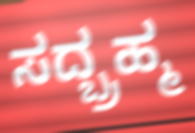
ಸದ್ಬ್ರಹ್ಮ